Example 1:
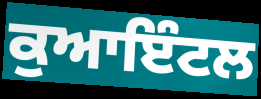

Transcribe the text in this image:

ਕੁਆਇੰਟਲ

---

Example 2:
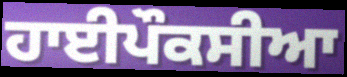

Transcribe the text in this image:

ਹਾਈਪੌਕਸੀਆ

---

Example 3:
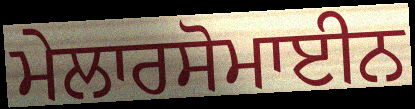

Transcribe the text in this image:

ਮੇਲਾਰਸੋਮਾਈਨ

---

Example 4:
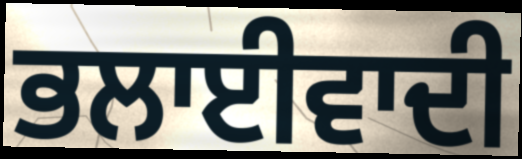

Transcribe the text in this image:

ਭਲਾਈਵਾਦੀ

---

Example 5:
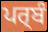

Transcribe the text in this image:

ਪਰ੍ਬੰ